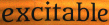
excitable